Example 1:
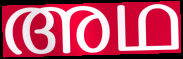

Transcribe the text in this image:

അഥ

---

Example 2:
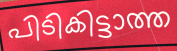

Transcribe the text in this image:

പിടികിട്ടാത്ത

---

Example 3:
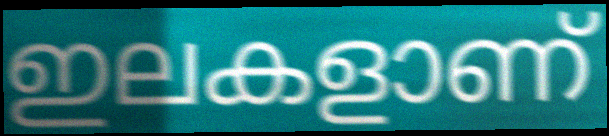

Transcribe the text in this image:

ഇലകളാണ്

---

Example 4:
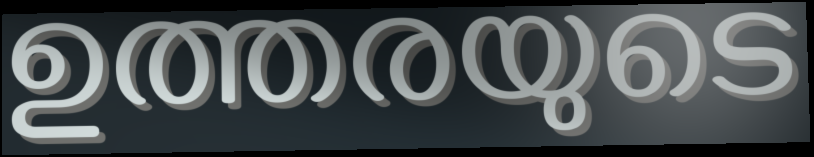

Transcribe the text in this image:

ഉത്തരയുടെ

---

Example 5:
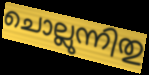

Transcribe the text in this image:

ചൊല്ലുന്നിതു